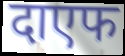
दाएफ